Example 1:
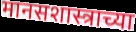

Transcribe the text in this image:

मानसशास्त्राच्या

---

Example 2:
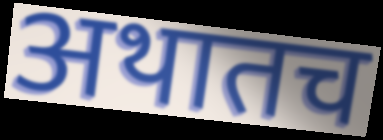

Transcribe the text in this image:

अथातच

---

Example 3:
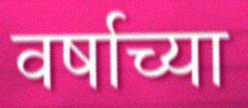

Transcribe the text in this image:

वर्षाच्या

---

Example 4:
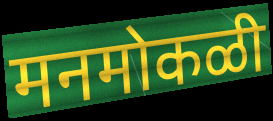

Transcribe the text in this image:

मनमोकळी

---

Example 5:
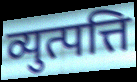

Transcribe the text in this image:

व्युत्पत्ति